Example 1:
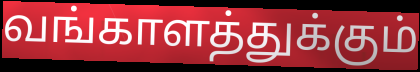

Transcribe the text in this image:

வங்காளத்துக்கும்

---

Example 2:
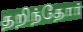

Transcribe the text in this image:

தறிந்தோர்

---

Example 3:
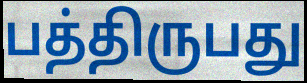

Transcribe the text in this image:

பத்திருபது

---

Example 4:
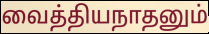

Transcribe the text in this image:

வைத்தியநாதனும்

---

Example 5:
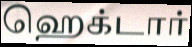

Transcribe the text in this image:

ஹெக்டார்